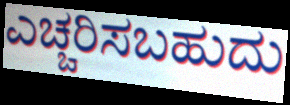
ಎಚ್ಚರಿಸಬಹುದು